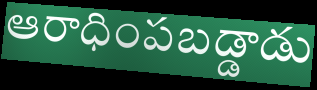
ఆరాధింపబడ్డాడు